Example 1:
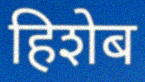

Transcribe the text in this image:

हिशेब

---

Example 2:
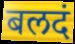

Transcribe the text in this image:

बलदं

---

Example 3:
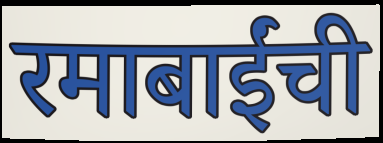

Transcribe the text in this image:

रमाबाईंची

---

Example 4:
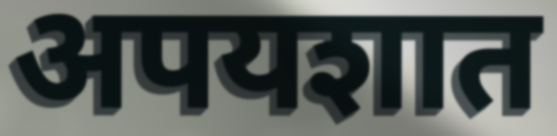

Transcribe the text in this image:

अपयशात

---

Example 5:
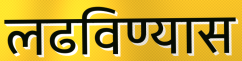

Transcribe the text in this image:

लढविण्यास